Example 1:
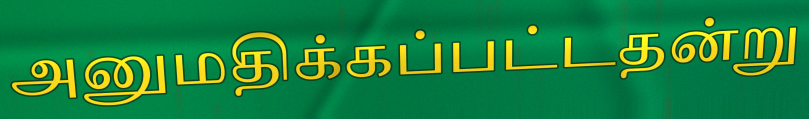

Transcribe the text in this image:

அனுமதிக்கப்பட்டதன்று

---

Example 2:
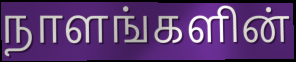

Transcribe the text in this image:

நாளங்களின்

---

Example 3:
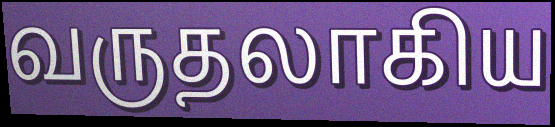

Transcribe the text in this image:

வருதலாகிய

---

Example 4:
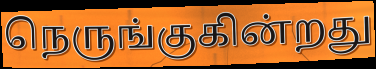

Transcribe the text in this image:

நெருங்குகின்றது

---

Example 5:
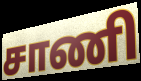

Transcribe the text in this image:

சாணி